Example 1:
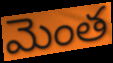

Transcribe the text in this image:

మెంత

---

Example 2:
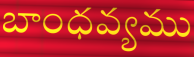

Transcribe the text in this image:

బాంధవ్యము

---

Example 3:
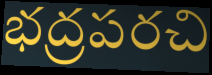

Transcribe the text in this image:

భద్రపరచి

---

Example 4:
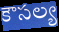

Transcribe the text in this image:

కౌసల్య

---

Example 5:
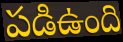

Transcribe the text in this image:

పడిఉంది